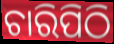
ଚାରିପିଠି